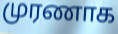
முரணாக